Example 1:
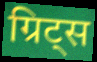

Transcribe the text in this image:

ग्रिट्स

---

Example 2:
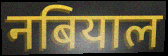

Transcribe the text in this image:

नबियाल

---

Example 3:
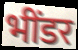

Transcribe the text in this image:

भींडर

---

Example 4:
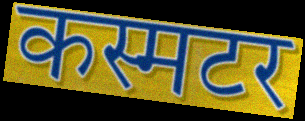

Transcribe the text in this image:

कस्मटर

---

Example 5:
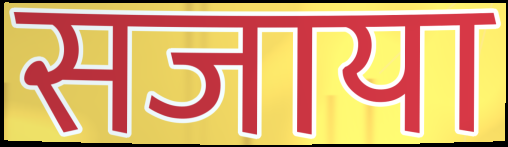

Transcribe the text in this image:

सजाया